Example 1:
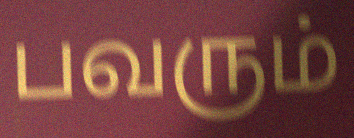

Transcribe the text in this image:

பவரும்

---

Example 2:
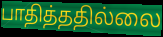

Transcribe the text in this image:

பாதித்ததில்லை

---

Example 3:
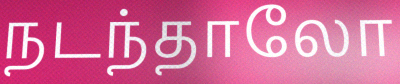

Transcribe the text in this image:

நடந்தாலோ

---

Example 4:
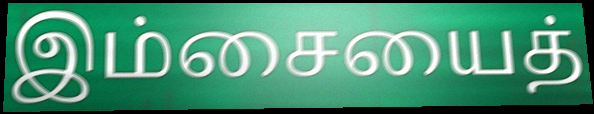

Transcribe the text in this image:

இம்சையைத்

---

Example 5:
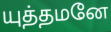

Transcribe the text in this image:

யுத்தமனே